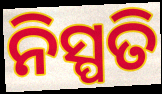
ନିସ୍ପତି